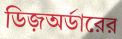
ডিজ়অর্ডারের